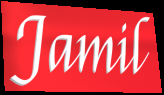
Jamil